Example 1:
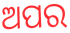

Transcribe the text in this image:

ଅପର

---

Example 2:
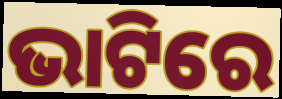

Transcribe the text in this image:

ଭାଟିରେ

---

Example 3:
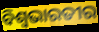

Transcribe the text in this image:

ବିଶ୍ୱଭାରତୀର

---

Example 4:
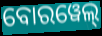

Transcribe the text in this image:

ବୋରୱେଲ୍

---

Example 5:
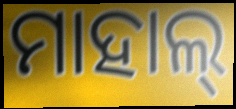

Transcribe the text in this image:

ମାହାଲ୍